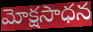
మోక్షసాధన